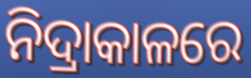
ନିଦ୍ରାକାଳରେ